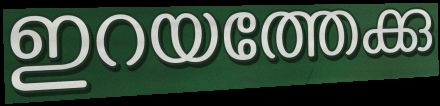
ഇറയത്തേക്കു